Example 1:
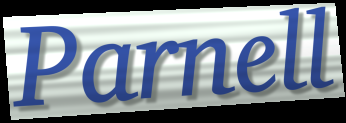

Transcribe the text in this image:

Parnell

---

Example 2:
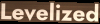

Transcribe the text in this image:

Levelized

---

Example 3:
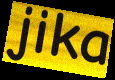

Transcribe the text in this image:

jika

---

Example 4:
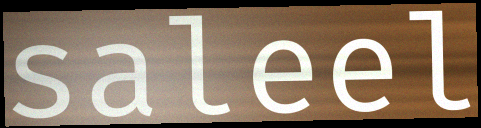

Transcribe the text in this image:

saleel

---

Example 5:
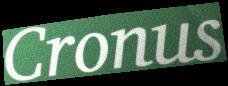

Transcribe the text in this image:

Cronus